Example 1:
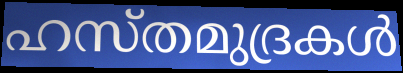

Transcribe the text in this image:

ഹസ്തമുദ്രകൾ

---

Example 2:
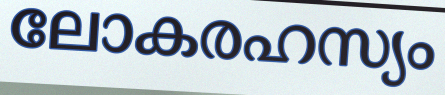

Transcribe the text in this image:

ലോകരഹസ്യം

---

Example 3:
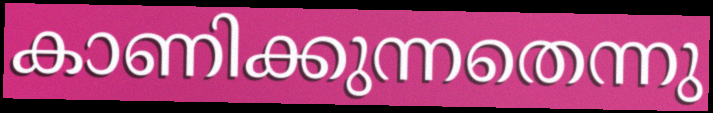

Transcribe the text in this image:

കാണിക്കുന്നതെന്നു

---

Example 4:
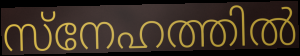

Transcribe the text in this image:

സ്നേഹത്തിൽ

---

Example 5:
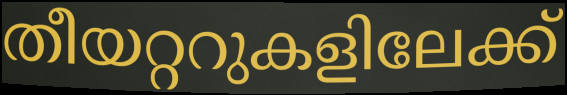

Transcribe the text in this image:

തീയറ്ററുകളിലേക്ക്